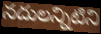
నదులన్నిటిని